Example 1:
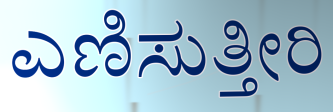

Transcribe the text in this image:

ಎಣಿಸುತ್ತೀರಿ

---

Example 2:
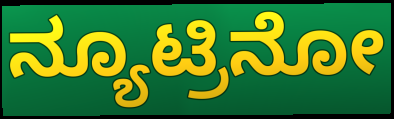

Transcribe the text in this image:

ನ್ಯೂಟ್ರಿನೋ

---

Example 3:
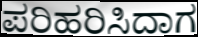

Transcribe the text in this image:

ಪರಿಹರಿಸಿದಾಗ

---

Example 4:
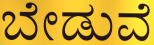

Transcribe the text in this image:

ಬೇಡುವೆ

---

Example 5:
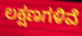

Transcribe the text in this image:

ಲಕ್ಷಣಗಳಿವೆ